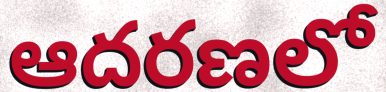
ఆదరణలో